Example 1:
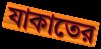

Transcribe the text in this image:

যাকাতের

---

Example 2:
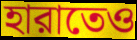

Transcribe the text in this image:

হারাতেও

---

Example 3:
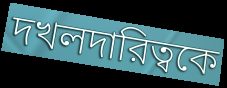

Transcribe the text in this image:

দখলদারিত্বকে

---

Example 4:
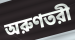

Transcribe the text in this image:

অরুণতরী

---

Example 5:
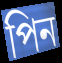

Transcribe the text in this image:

পিন